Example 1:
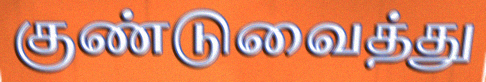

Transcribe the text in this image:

குண்டுவைத்து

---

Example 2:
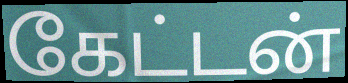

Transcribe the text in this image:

கேட்டன்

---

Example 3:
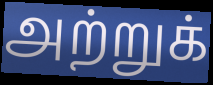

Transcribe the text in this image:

அற்றுக்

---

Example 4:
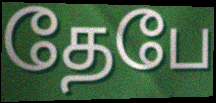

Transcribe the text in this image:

தேபே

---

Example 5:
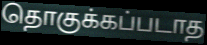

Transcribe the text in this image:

தொகுக்கப்படாத